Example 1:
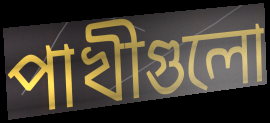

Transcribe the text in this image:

পাখীগুলো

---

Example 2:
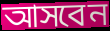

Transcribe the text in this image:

আসবেন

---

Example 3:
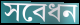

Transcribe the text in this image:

সবেধন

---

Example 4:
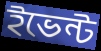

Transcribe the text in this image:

ইভেন্ট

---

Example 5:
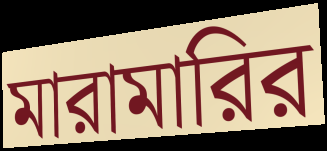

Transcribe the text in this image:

মারামারির